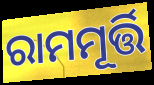
ରାମମୂର୍ତ୍ତି